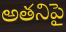
అతనిపై